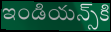
ఇండియన్స్‌కి